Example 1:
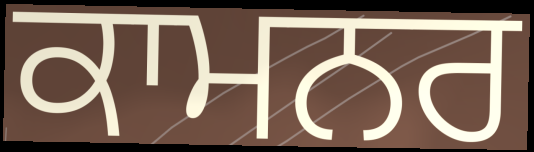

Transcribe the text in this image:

ਕਾਮਨਰ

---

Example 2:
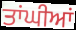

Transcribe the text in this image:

ਤਾਂਘੀਆਂ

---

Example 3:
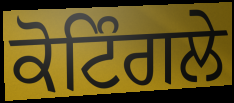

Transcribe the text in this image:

ਕੋਟਿੰਗਲੇ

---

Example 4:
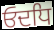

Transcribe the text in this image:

ਓਦਧਿ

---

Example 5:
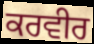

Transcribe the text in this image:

ਕਰਵੀਰ